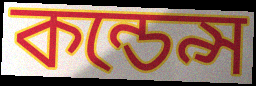
কন্ডেন্স